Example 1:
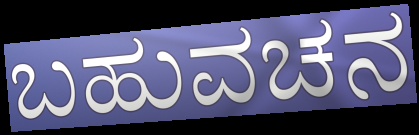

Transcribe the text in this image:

ಬಹುವಚನ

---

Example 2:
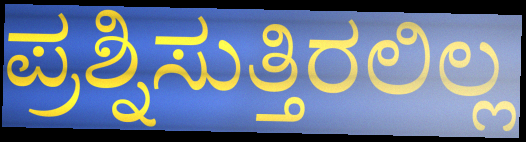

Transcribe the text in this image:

ಪ್ರಶ್ನಿಸುತ್ತಿರಲಿಲ್ಲ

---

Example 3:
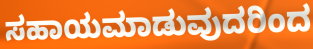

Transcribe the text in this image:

ಸಹಾಯಮಾಡುವುದರಿಂದ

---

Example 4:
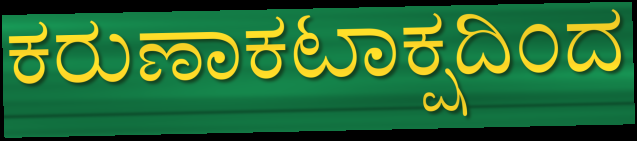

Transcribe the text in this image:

ಕರುಣಾಕಟಾಕ್ಷದಿಂದ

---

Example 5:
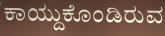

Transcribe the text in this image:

ಕಾಯ್ದುಕೊಂಡಿರುವ